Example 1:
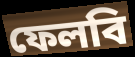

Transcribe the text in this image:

ফেলবি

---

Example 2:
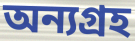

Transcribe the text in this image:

অন্যগ্রহ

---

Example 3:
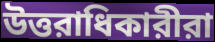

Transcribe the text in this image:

উত্তরাধিকারীরা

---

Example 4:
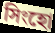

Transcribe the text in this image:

সিংহো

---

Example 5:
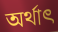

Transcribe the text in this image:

অর্থাৎ